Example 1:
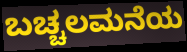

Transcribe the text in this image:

ಬಚ್ಚಲಮನೆಯ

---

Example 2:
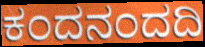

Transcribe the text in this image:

ಕಂದನಂದದಿ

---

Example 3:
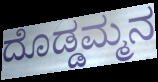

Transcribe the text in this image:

ದೊಡ್ಡಮ್ಮನ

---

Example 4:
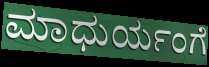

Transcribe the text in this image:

ಮಾಧುರ್ಯಂಗೆ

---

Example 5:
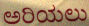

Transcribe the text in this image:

ಅರಿಯಲು